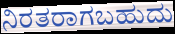
ನಿರತರಾಗಬಹುದು